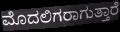
ಮೊದಲಿಗರಾಗುತ್ತಾರೆ